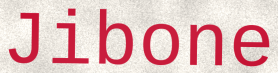
Jibone